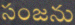
సంజను